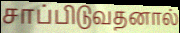
சாப்பிடுவதனால்